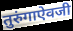
तुरुंगाऐवजी